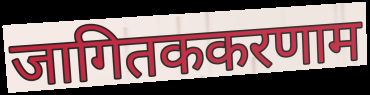
जागितककरणाम